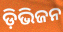
ଡ଼ିଭିଜନ